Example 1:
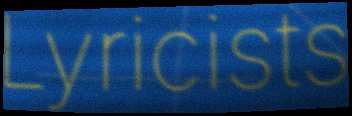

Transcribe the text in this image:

Lyricists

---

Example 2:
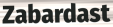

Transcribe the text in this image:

Zabardast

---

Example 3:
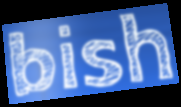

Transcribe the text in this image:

bish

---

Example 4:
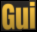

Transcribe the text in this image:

Gui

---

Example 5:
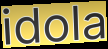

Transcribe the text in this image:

idola